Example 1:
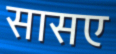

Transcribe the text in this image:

सासए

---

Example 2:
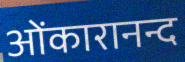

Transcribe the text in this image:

ओंकारानन्द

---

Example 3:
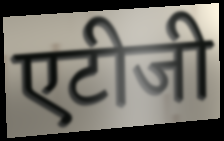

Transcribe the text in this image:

एटीजी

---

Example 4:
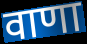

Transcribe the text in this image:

वाणा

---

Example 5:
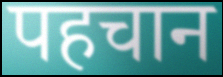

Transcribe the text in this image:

पहचान